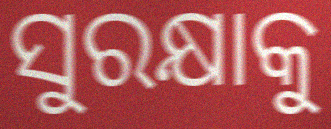
ସୁରକ୍ଷାକୁ